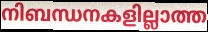
നിബന്ധനകളില്ലാത്ത